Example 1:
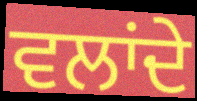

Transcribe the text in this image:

ਵਲਾਂਦੇ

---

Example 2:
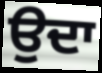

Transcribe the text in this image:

ਉਦਾ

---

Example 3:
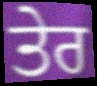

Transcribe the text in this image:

ਤੇਰ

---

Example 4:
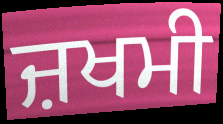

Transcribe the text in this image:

ਜ਼ਖਮੀ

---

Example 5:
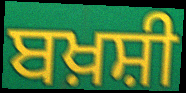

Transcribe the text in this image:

ਬਖ਼ਸ਼ੀ